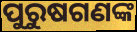
ପୁରୁଷଗଣଙ୍କ